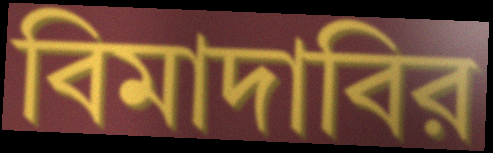
বিমাদাবির